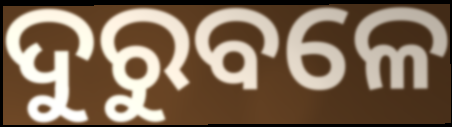
ଦୁରୁବଳେ